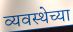
व्यवस्थेच्या